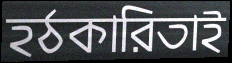
হঠকারিতাই